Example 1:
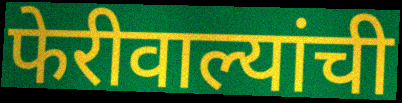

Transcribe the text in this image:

फेरीवाल्यांची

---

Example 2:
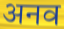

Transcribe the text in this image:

अनव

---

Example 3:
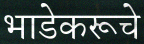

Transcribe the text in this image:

भाडेकरूचे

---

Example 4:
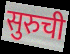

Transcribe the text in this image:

सुरुची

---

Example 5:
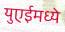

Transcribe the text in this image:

युएईमध्ये